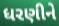
ધરણીને